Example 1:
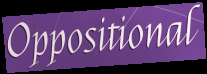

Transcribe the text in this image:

Oppositional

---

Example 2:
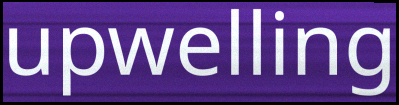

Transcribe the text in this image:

upwelling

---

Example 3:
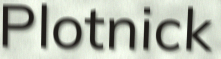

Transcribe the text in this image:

Plotnick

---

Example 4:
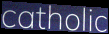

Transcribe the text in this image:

catholic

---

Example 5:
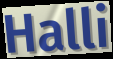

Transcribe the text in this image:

Halli